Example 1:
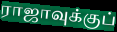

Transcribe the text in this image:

ராஜாவுக்குப்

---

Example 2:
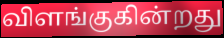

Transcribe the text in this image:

விளங்குகின்றது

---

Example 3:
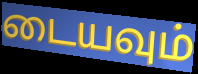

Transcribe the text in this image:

டையவும்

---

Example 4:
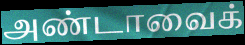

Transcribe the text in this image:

அண்டாவைக்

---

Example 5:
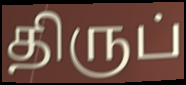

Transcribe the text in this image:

திருப்